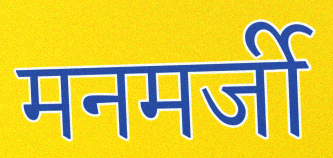
मनमर्जी